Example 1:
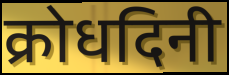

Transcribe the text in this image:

क्रोधदिनी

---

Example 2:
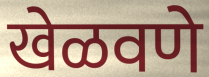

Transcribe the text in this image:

खेळवणे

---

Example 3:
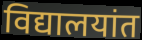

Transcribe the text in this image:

विद्यालयांत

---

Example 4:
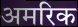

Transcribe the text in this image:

अमरिक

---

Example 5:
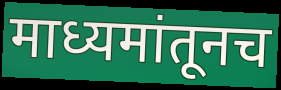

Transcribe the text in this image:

माध्यमांतूनच